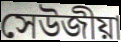
সেউজীয়া